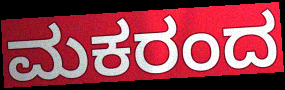
ಮಕರಂದ